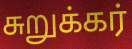
சுறுக்கர்